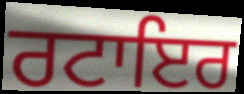
ਰਟਾਇਰ